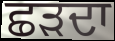
ਛੜਦਾ